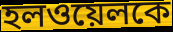
হলওয়েলকে